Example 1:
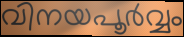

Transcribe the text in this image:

വിനയപൂർവ്വം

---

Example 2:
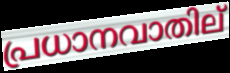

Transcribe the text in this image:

പ്രധാനവാതില്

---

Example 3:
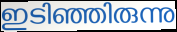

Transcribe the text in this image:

ഇടിഞ്ഞിരുന്നു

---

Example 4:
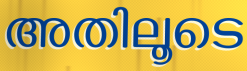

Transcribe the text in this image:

അതിലൂടെ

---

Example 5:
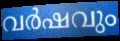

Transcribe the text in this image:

വർഷവും